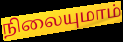
நிலையுமாம்